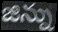
జిన్ను